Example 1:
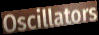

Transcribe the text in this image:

Oscillators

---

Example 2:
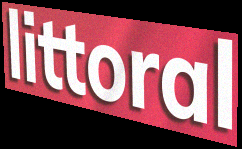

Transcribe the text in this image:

littoral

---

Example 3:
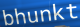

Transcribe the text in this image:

bhunkt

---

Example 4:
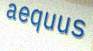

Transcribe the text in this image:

aequus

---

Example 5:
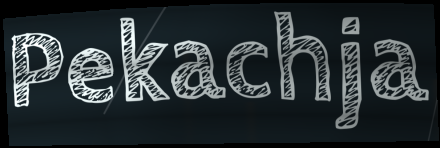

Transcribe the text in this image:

Pekachja